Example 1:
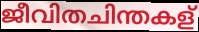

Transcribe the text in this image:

ജീവിതചിന്തകള്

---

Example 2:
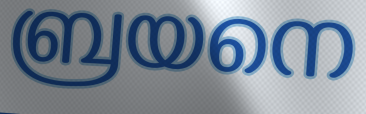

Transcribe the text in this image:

ബ്രയനെ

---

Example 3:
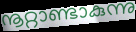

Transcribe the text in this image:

നൂറ്റാണ്ടാകുന്നു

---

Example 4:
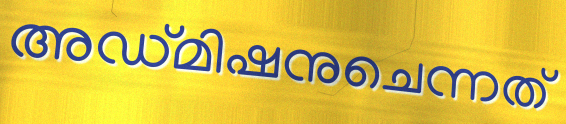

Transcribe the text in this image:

അഡ്മിഷനുചെന്നത്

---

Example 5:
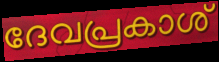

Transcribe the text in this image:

ദേവപ്രകാശ്